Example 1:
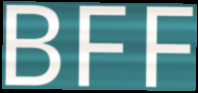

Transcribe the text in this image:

BFF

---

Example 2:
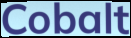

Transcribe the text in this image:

Cobalt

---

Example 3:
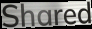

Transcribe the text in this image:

Shared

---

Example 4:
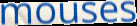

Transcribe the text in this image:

mouses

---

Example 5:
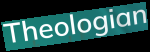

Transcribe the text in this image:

Theologian